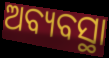
ଅବ୍ୟବସ୍ଥା